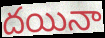
దయినా